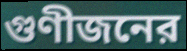
গুণীজনের